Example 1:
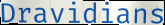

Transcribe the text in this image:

Dravidians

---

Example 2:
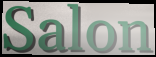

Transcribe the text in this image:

Salon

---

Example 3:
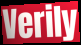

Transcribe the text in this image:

Verily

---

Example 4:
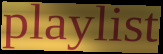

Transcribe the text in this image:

playlist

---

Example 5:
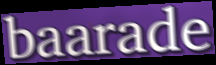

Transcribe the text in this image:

baarade